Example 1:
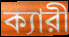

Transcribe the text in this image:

ক্যারী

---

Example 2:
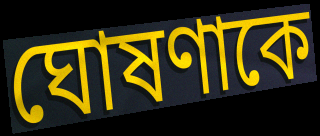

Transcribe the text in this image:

ঘোষণাকে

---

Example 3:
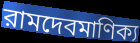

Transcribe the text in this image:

রামদেবমাণিক্য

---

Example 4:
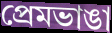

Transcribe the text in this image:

প্রেমভাঙা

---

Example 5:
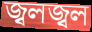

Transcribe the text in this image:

জ্বলজ্বল